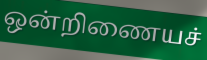
ஒன்றிணையச்